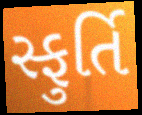
સ્ફુર્તિ